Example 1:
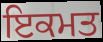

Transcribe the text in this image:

ਇਕਮਤ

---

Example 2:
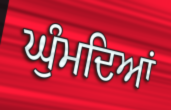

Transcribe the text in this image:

ਘੁੰਮਦਿਆਂ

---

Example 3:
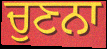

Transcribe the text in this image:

ਚੁਣਨਾ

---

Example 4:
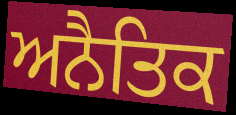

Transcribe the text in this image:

ਅਨੈਤਿਕ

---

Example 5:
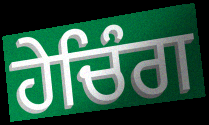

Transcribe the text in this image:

ਹੇਚਿੰਗ